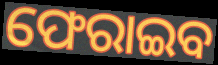
ଫେରାଇବ